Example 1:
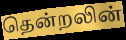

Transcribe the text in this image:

தென்றலின்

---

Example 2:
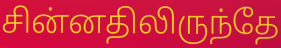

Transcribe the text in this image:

சின்னதிலிருந்தே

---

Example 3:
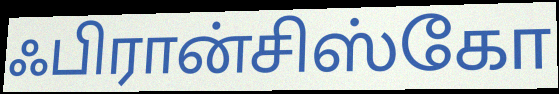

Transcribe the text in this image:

ஃபிரான்சிஸ்கோ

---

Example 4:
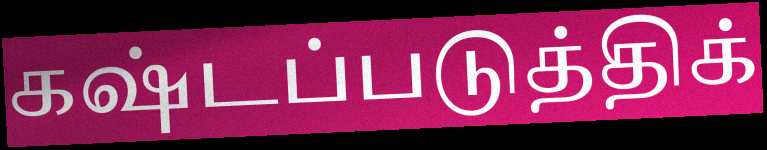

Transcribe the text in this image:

கஷ்டப்படுத்திக்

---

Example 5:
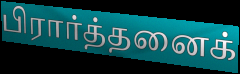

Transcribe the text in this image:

பிரார்த்தனைக்